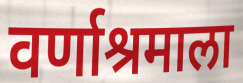
वर्णाश्रमाला